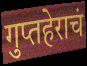
गुप्तहेराचं